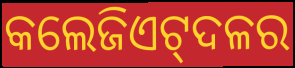
କଲେଜିଏଟ୍‍ଦଳର